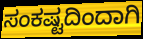
ಸಂಕಷ್ಟದಿಂದಾಗಿ